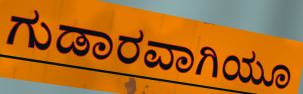
ಗುಡಾರವಾಗಿಯೂ